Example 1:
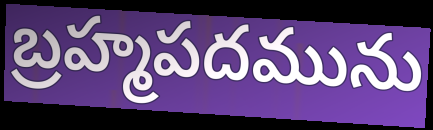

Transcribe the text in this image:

బ్రహ్మపదమును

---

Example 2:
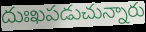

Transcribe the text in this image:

దుఃఖపడుచున్నారు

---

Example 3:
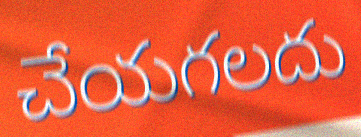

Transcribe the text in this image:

చేయగలదు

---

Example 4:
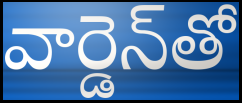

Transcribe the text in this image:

వార్డెన్‌తో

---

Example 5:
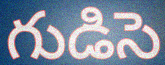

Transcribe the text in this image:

గుడిసె